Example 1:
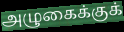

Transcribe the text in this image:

அழுகைக்குக்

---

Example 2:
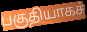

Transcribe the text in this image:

பகுதியாகச்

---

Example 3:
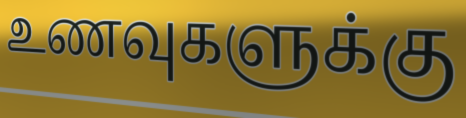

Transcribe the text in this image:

உணவுகளுக்கு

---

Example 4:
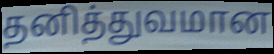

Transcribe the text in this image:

தனித்துவமான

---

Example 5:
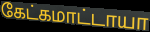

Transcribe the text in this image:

கேட்கமாட்டாயா